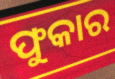
ଫୁକାର